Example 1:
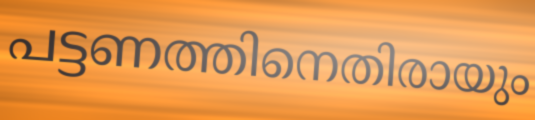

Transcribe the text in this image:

പട്ടണത്തിനെതിരായും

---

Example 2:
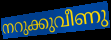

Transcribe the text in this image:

നറുക്കുവീണു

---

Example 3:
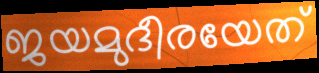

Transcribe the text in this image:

ജയമുദീരയേത്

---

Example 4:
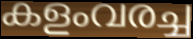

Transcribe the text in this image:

കളംവരച്ച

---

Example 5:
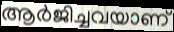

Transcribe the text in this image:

ആർജിച്ചവയാണ്